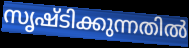
സൃഷ്ടിക്കുന്നതിൽ